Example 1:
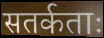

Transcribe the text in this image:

सतर्कताः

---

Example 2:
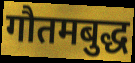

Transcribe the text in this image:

गौतमबुद्ध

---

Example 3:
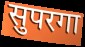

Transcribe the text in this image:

सुपरगा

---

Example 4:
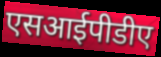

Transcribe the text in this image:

एसआईपीडीए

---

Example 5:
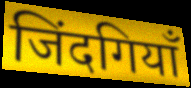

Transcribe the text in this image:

जिंदगियाँ